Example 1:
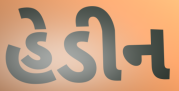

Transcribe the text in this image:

હેડીન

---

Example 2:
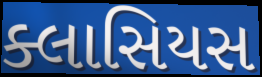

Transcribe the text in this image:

ક્લાસિયસ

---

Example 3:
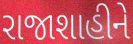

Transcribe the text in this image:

રાજાશાહીને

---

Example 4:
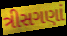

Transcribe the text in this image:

ત્રીસગણાં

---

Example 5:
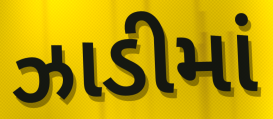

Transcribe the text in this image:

ઝાડીમાં